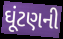
ઘૂંટણની